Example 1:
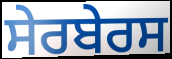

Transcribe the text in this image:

ਸੇਰਬੇਰਸ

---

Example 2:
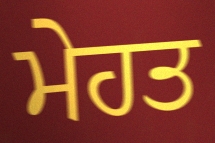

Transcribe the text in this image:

ਮੇਹਤ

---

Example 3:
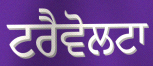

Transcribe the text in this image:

ਟਰੈਵੋਲਟਾ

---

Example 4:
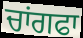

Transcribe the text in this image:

ਚਾਂਗਫਾ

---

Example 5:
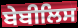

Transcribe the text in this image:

ਬੇਬੀਲਿਸ